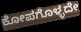
ಕೋಪಗೊಳ್ಳದೇ